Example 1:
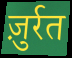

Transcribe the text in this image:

ज़ुर्रत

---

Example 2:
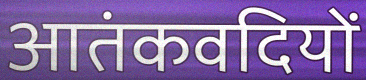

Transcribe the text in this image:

आतंकवदियों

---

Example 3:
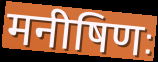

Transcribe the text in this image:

मनीषिणः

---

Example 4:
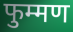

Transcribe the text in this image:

फुम्मण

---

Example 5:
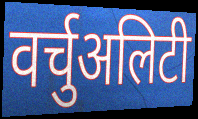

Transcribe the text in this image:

वर्चुअलिटी